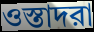
ওস্তাদরা